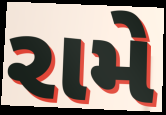
રામે